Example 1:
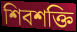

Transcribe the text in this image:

শিবশক্তি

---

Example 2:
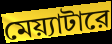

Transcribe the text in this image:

মেয়্যাটারে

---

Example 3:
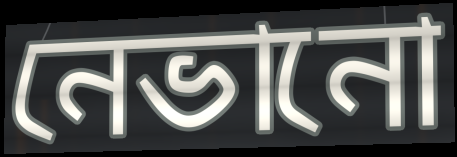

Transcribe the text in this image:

নেভানো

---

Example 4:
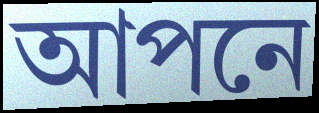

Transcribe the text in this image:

আপনে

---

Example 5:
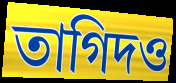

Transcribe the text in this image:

তাগিদও